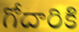
గోదారికి